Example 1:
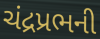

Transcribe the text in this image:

ચંદ્રપ્રભની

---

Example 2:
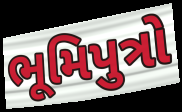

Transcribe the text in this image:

ભૂમિપુત્રો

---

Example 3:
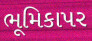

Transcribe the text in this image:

ભૂમિકાપર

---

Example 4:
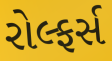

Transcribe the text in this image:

રોલ્ફર્સ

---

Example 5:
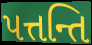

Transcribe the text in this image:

પત્તન્તિ